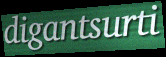
digantsurti